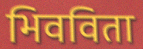
भिवविता